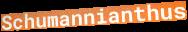
Schumannianthus